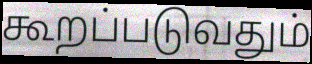
கூறப்படுவதும்